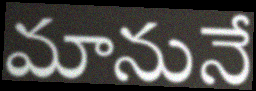
మానునే